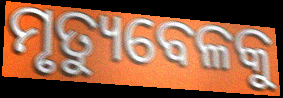
ମୃତ୍ୟୁବେଳକୁ